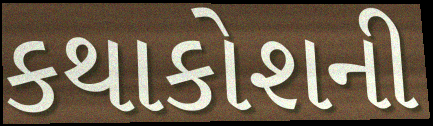
કથાકોશની